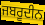
ਜਬਰੂਦੀਨ